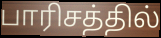
பாரிசத்தில்